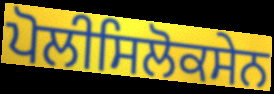
ਪੋਲੀਸਿਲੋਕਸੇਨ